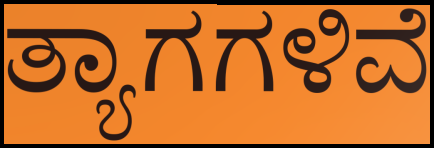
ತ್ಯಾಗಗಳಿವೆ